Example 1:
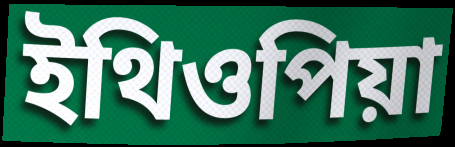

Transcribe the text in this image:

ইথিওপিয়া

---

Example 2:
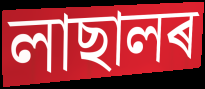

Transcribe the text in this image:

লাছালৰ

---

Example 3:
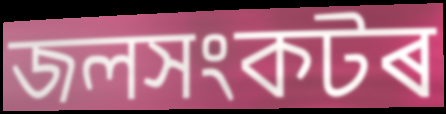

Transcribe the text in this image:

জলসংকটৰ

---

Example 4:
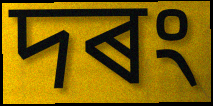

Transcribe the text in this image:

দৰং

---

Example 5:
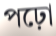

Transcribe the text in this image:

পঢ়ো